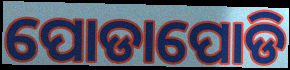
ପୋଡାପୋଡି